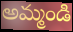
అమ్మండి